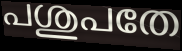
പശുപതേ